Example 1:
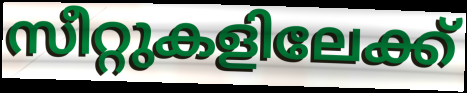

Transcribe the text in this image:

സീറ്റുകളിലേക്ക്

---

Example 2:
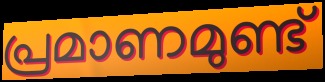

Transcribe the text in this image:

പ്രമാണമുണ്ട്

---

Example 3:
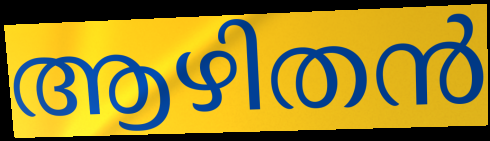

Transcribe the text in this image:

ആഴിതൻ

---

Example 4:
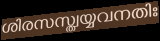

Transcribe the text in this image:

ശിരസസ്ത്വയ്യവനതിഃ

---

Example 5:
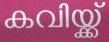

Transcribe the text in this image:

കവിയ്ക്ക്